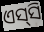
ଏସ୍‍ସି